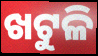
ଖଟୁଳି